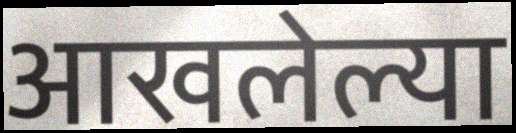
आखलेल्या